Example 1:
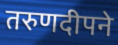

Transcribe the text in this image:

तरुणदीपने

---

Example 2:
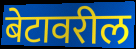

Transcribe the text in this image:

बेटावरील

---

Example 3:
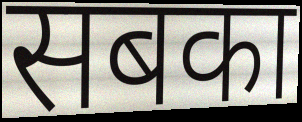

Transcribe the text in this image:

सबका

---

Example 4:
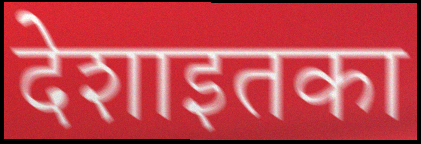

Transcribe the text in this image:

देशाइतका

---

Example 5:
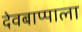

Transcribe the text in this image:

देवबाप्पाला